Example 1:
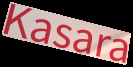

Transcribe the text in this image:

Kasara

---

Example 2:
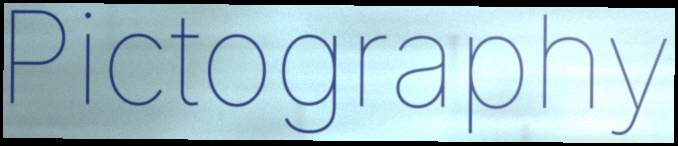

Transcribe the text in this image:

Pictography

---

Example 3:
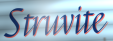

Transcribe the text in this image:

Struvite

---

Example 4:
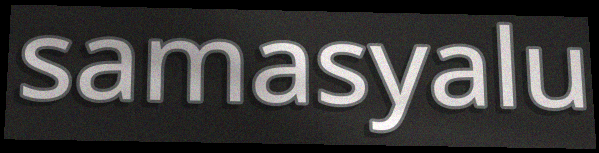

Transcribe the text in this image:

samasyalu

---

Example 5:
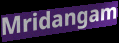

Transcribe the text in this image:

Mridangam